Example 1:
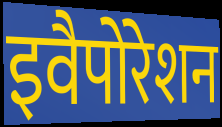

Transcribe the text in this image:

इवैपोरेशन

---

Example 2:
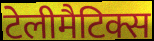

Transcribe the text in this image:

टेलीमैटिक्स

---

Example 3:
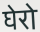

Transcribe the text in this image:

घेरो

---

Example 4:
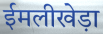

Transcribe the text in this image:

ईमलीखेड़ा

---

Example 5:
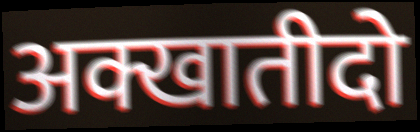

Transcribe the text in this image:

अक्खातीदो